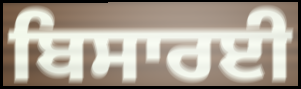
ਬਿਸਾਰਈ